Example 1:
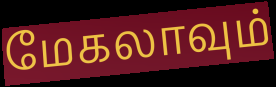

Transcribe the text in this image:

மேகலாவும்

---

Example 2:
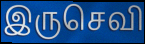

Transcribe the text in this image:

இருசெவி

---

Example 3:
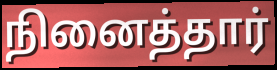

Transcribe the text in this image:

நினைத்தார்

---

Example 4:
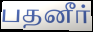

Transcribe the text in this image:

பதனீர்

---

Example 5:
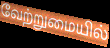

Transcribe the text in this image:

வேற்றுமையில்